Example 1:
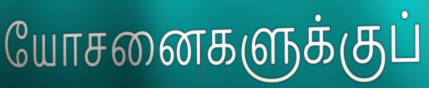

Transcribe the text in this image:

யோசனைகளுக்குப்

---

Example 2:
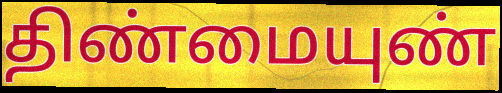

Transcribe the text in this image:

திண்மையுண்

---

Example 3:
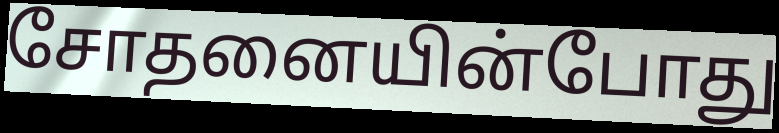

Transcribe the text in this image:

சோதனையின்போது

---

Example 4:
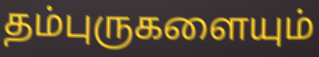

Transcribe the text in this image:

தம்புருகளையும்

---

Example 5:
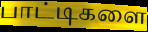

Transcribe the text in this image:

பாட்டிகளை